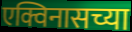
एक्विनासच्या